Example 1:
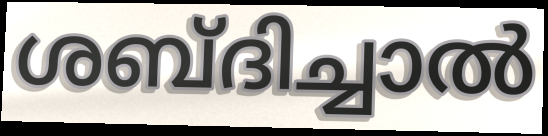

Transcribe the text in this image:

ശബ്ദിച്ചാൽ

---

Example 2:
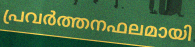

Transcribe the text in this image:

പ്രവർത്തനഫലമായി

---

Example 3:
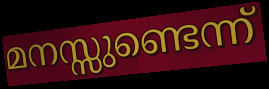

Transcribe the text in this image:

മനസ്സുണ്ടെന്ന്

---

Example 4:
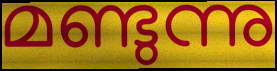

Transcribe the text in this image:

മണ്ടുന്നു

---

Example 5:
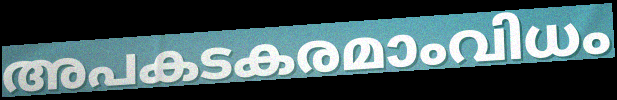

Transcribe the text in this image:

അപകടകരമാംവിധം